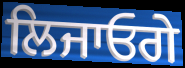
ਲਿਜਾਓਗੇ